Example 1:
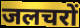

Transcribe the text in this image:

जलचरों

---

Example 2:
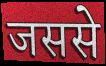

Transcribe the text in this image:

जससे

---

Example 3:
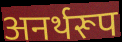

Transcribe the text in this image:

अनर्थरूप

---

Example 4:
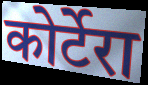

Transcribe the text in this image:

कोर्टेरा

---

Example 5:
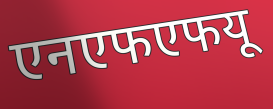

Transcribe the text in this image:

एनएफएफयू